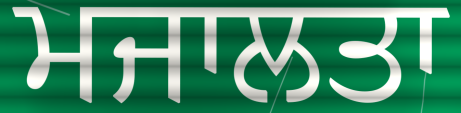
ਮਜਾਲਤਾ